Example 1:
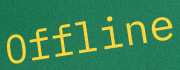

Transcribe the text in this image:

Offline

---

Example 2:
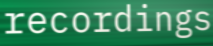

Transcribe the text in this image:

recordings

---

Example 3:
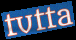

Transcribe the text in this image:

tutta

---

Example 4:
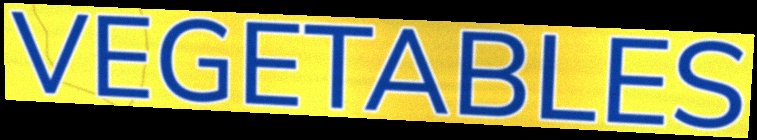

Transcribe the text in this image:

VEGETABLES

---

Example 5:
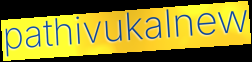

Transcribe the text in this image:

pathivukalnew